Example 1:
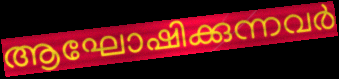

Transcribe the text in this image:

ആഘോഷിക്കുന്നവർ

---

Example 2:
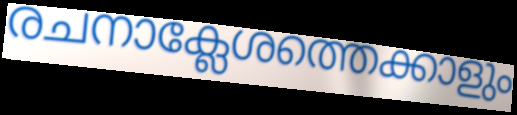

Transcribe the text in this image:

രചനാക്ലേശത്തെക്കാളും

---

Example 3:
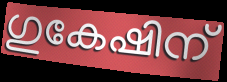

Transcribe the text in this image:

ഗുകേഷിന്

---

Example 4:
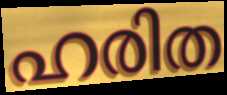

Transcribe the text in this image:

ഹരിത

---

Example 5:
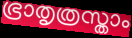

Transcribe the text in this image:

ഭ്രാതൃത്രസ്താം